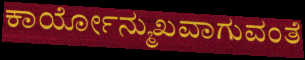
ಕಾರ್ಯೋನ್ಮುಖವಾಗುವಂತೆ